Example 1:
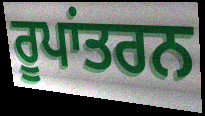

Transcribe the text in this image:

ਰੂਪਾਂਤਰਨ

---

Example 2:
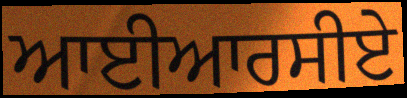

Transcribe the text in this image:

ਆਈਆਰਸੀਏ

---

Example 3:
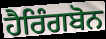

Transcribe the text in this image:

ਹੈਰਿੰਗਬੋਨ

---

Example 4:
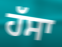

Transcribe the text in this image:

ਹੱਸਾ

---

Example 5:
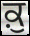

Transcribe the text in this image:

ਕ਼ੁ